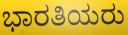
ಭಾರತಿಯರು